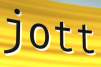
jott